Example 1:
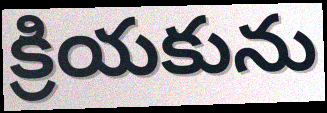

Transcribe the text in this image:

క్రియకును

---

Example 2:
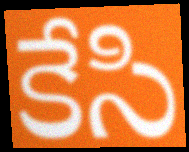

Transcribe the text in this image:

కేసి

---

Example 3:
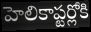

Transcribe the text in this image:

హెలికాప్టర్లోకి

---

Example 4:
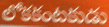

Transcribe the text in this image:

లోకకంటకుడు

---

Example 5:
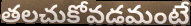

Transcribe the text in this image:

తలచుకోవడమంటే